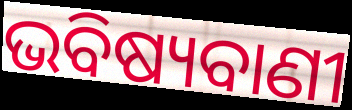
ଭବିଷ୍ୟବାଣୀ